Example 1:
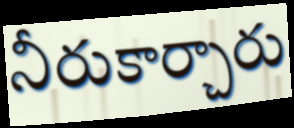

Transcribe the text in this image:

నీరుకార్చారు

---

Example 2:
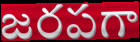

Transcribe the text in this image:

జరపగా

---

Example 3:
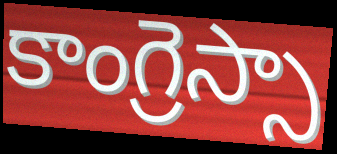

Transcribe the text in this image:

కాంగ్రెస్సా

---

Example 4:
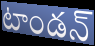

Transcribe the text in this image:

టాండన్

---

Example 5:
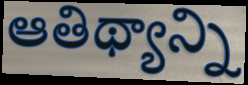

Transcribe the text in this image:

ఆతిథ్యాన్ని